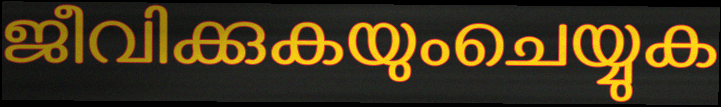
ജീവിക്കുകയുംചെയ്യുക